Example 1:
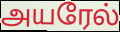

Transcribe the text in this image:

அயரேல்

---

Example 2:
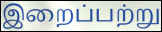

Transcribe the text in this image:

இறைப்பற்று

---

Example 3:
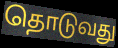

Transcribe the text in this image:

தொடுவது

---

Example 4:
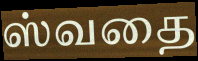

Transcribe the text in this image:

ஸ்வதை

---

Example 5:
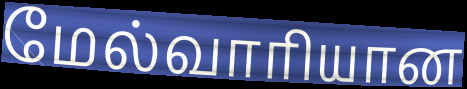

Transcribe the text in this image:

மேல்வாரியான